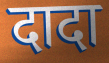
दादा